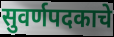
सुवर्णपदकाचे